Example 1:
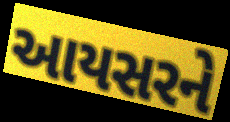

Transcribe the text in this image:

આયસરને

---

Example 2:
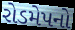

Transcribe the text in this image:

રોડમેપનો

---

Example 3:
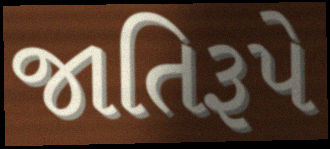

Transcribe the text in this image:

જાતિરૂપે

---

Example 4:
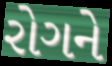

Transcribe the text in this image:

રોગને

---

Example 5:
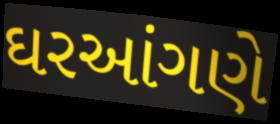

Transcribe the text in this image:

ઘરઆંગણે